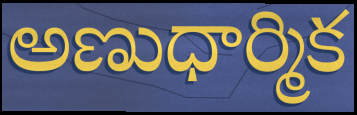
అణుధార్మిక